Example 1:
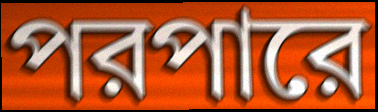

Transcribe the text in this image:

পরপারে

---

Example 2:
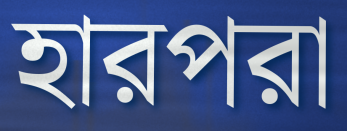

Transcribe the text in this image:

হারপরা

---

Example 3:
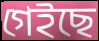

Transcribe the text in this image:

গেইছে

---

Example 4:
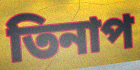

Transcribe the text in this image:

তিনাপ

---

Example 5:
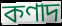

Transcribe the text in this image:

কণাদ